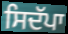
ਸਿਦੱਪਾ